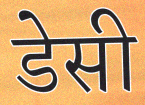
डेसी